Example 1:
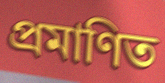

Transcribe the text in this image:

প্ৰমাণিত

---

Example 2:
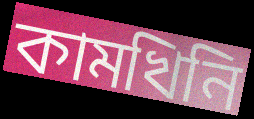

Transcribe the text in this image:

কামখিনি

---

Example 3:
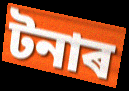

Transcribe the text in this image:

টনাৰ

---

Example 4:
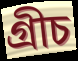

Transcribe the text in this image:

গ্ৰীচ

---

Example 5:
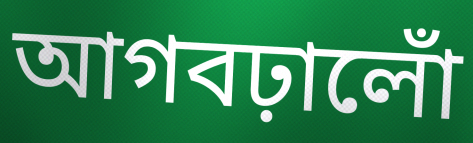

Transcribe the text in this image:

আগবঢ়ালোঁ